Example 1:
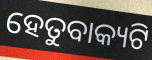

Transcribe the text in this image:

ହେତୁବାକ୍ୟଟି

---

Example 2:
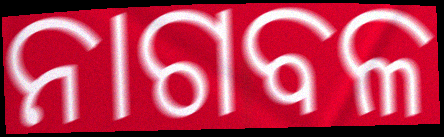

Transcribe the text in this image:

ନାଗବଳ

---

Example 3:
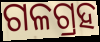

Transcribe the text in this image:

ଗଳଗ୍ରହ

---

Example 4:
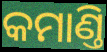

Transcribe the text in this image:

କମାଣ୍ତି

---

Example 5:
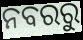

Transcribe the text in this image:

ନବରରୁ